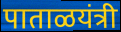
पाताळयंत्री